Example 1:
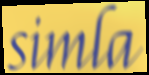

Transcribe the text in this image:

simla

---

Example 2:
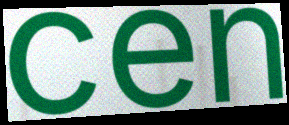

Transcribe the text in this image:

cen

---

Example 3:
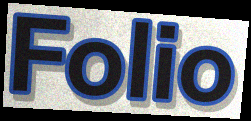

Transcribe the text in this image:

Folio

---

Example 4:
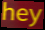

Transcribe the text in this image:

hey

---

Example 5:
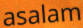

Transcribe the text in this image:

asalam